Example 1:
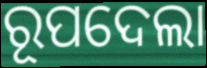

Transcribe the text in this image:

ରୂପଦେଲା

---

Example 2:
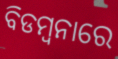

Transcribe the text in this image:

ବିଡମ୍ବନାରେ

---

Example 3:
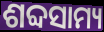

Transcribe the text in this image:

ଶବ୍ଦସାମ୍ୟ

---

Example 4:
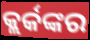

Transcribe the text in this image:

କ୍ଲର୍କଙ୍କର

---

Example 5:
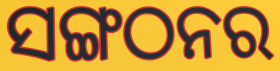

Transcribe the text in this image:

ସଙ୍ଗଠନର